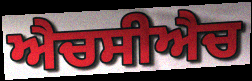
ਐਚਸੀਐਚ